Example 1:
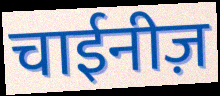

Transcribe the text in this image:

चाईनीज़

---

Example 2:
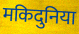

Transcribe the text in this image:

मकिदुनिया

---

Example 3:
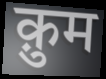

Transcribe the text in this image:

क़ुम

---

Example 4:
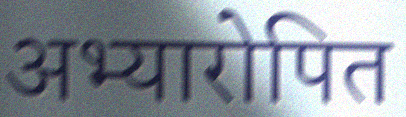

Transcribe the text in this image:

अभ्यारोपित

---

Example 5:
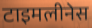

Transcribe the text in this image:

टाइमलीनेस